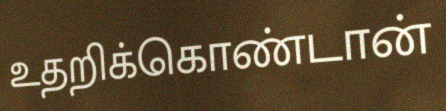
உதறிக்கொண்டான்